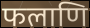
फलाणि